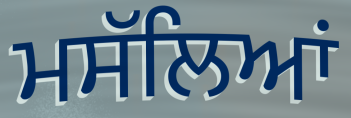
ਮਸੱਲਿਆਂ